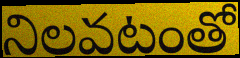
నిలవటంతో